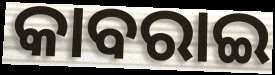
କାବରାଇ